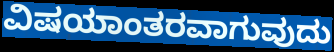
ವಿಷಯಾಂತರವಾಗುವುದು